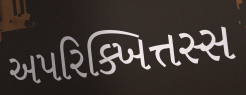
અપરિક્ખિત્તસ્સ